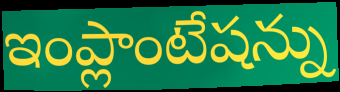
ఇంప్లాంటేషన్ను